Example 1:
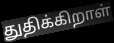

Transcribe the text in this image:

துதிக்கிறாள்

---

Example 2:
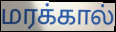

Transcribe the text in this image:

மரக்கால்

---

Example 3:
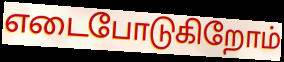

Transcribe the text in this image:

எடைபோடுகிறோம்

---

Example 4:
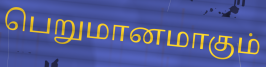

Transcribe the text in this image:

பெறுமானமாகும்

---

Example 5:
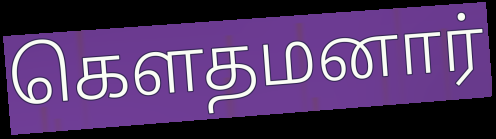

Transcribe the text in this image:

கெளதமனார்